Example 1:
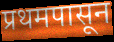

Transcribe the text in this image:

प्रथमपासून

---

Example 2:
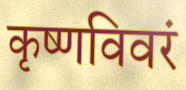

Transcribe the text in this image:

कृष्णविवरं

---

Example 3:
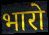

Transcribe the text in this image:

भारो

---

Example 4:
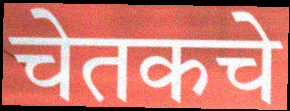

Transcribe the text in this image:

चेतकचे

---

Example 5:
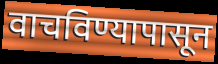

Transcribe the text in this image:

वाचविण्यापासून